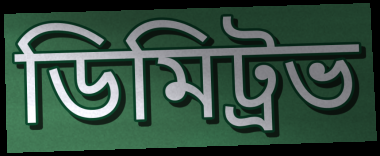
ডিমিট্রভ